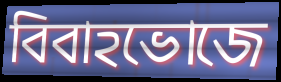
বিবাহভোজে